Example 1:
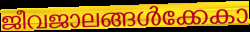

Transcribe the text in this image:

ജീവജാലങ്ങൾക്കേകാ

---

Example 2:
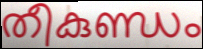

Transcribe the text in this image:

തീകുണ്ഡം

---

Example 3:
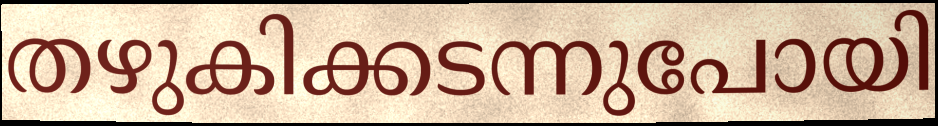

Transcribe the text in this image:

തഴുകിക്കടന്നുപോയി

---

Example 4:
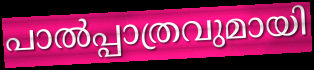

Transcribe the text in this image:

പാൽപ്പാത്രവുമായി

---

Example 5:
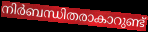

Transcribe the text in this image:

നിർബന്ധിതരാകാറുണ്ട്